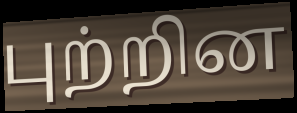
புற்றின